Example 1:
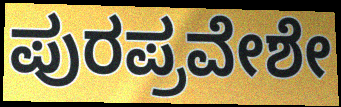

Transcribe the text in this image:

ಪುರಪ್ರವೇಶೇ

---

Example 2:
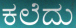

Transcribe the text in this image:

ಕಲೆದು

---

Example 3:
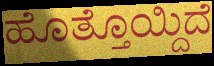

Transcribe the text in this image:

ಹೊತ್ತೊಯ್ದಿದೆ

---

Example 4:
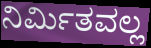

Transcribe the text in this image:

ನಿರ್ಮಿತವಲ್ಲ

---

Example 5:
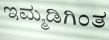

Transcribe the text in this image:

ಇಮ್ಮಡಿಗಿಂತ